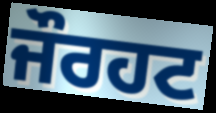
ਜੌਰਹਟ